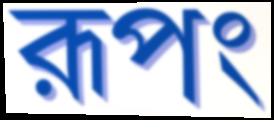
রূপং